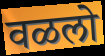
वळलो